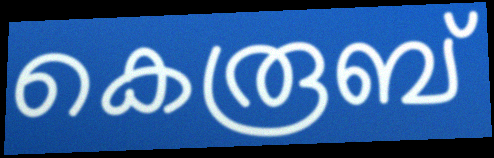
കെരൂബ്